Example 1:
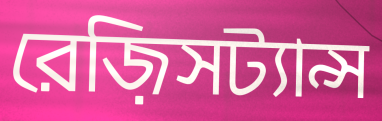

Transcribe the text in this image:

রেজ়িসট্যান্স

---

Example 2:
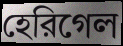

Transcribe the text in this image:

হেরিগেল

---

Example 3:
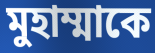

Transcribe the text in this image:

মুহাম্মাকে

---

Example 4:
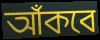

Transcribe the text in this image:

আঁকবে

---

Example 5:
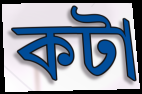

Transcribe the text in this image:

কটা